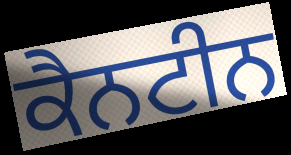
ਕੈਨਟੀਨ